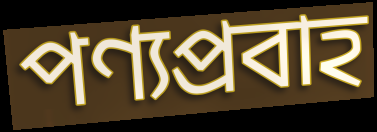
পণ্যপ্রবাহ